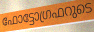
ഫോട്ടോഗ്രഫറുടെ